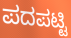
ಪದಪಟ್ಟಿ